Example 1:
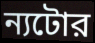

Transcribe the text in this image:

ন্যটোর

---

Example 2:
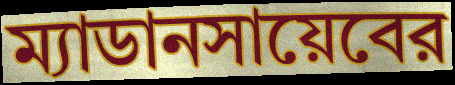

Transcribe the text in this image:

ম্যাডানসায়েবের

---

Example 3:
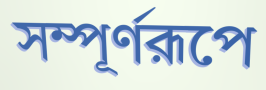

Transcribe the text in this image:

সম্পূর্ণরূপে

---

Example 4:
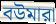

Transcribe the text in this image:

বউমারা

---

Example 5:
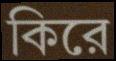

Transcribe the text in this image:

কিরে